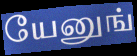
யேனுங்